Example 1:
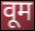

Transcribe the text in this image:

वूम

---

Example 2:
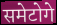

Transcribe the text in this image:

समेटोगे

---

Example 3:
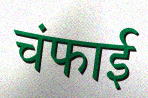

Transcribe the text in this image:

चंफाई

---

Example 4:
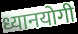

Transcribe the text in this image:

ध्यानयोगी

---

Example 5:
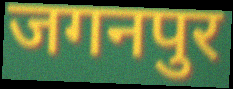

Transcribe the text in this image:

जगनपुर